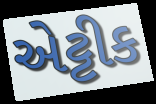
એટ્ટીક